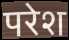
परेश